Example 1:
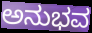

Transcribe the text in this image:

ಅನುಭವ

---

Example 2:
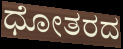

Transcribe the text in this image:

ಧೋತರದ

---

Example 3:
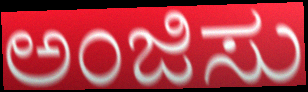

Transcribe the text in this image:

ಅಂಜಿಸು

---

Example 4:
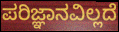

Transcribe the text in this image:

ಪರಿಜ್ಞಾನವಿಲ್ಲದೆ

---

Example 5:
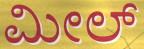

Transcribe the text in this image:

ಮೀಲ್